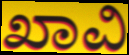
ಖಾವಿ